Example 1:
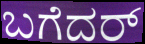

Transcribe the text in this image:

ಬಗೆದರ್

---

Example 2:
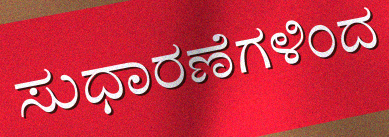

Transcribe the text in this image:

ಸುಧಾರಣೆಗಳಿಂದ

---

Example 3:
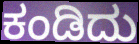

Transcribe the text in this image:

ಕಂಡಿದು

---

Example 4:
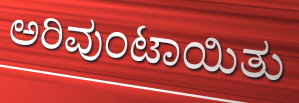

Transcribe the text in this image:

ಅರಿವುಂಟಾಯಿತು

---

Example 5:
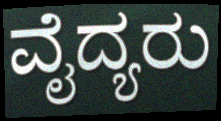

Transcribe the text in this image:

ವೈದ್ಯರು